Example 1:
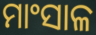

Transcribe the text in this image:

ମାଂସାଳ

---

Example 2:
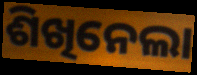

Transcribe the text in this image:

ଶିଖିନେଲା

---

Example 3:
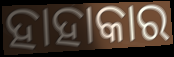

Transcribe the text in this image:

ହାହାକାର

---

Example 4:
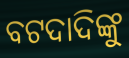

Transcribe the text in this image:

ବଟଦାଦିଙ୍କୁ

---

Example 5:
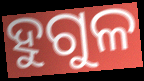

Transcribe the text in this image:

ହୁଗୁଳ